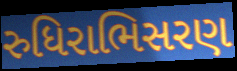
રુધિરાભિસરણ